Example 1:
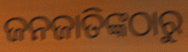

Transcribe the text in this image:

ଜନଜାତିଙ୍କଠାରୁ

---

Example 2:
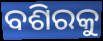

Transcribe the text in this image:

ବଶିରକୁ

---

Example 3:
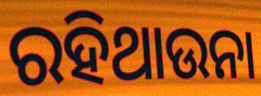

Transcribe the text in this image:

ରହିଥାଉନା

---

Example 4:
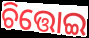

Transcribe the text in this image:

ଚିତ୍ତୋଇ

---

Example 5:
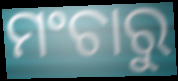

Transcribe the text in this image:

ମଂଚାରୁ